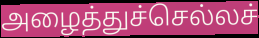
அழைத்துச்செல்லச்